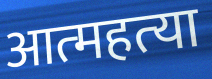
आत्‍महत्‍या